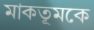
মাকতূমকে